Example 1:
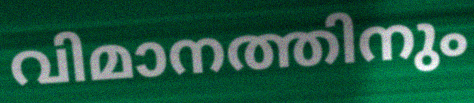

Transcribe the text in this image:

വിമാനത്തിനും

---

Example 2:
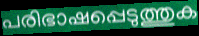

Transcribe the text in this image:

പരിഭാഷപ്പെടുത്തുക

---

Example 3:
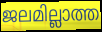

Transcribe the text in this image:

ജലമില്ലാത്ത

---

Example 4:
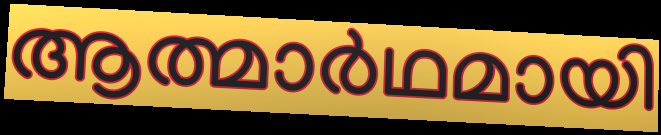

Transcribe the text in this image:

ആത്മാർഥമായി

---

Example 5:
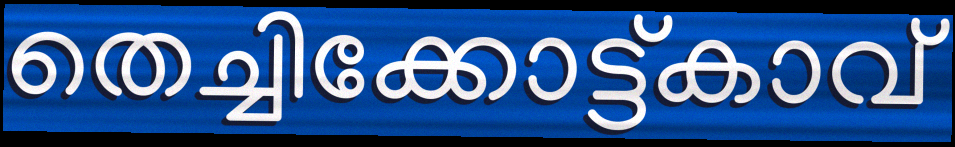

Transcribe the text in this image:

തെച്ചിക്കോട്ട്കാവ്